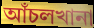
আঁচলখানা